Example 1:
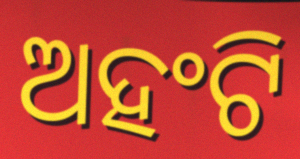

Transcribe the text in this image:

ଅହଂଟି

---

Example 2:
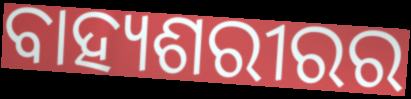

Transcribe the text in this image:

ବାହ୍ୟଶରୀରର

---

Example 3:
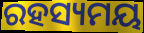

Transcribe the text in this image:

ରହସ୍ୟମୟ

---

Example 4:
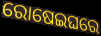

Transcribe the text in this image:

ରୋଷେଇଘରେ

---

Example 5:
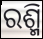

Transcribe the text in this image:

ରଶ୍ମି